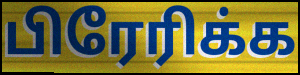
பிரேரிக்க